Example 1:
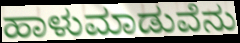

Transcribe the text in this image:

ಹಾಳುಮಾಡುವೆನು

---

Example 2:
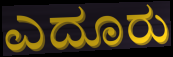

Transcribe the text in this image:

ಎದೂರು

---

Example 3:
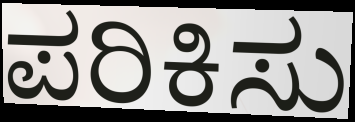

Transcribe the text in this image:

ಪರಿಕಿಸು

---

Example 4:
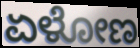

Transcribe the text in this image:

ಏಳೋಣ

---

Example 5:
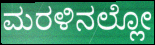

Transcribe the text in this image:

ಮರಳಿನಲ್ಲೋ